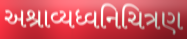
અશ્રાવ્યધ્વનિચિત્રણ